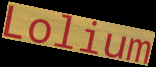
Lolium